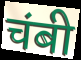
चंबी